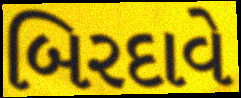
બિરદાવે